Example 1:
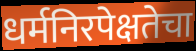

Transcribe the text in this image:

धर्मनिरपेक्षतेचा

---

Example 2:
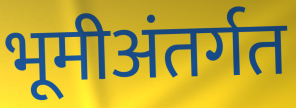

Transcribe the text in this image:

भूमीअंतर्गत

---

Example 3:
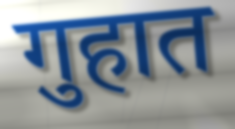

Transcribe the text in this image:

गुहात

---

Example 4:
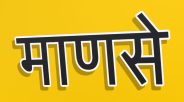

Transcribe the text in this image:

माणसे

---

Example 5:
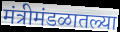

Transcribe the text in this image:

मंत्रीमंडळातल्या